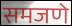
समजणे